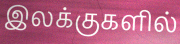
இலக்குகளில்